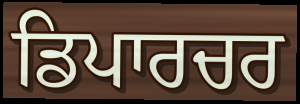
ਡਿਪਾਰਚਰ